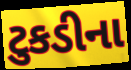
ટુકડીના